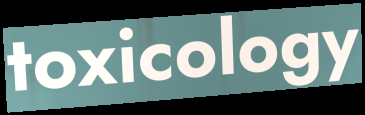
toxicology